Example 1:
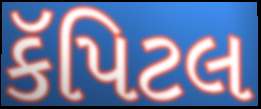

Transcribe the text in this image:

કૅપિટલ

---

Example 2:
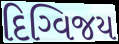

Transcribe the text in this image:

દિગ્વિજય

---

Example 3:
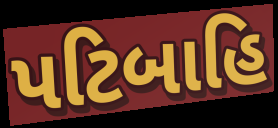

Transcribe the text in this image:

પટિબાહિ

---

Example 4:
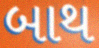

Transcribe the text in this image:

બાથ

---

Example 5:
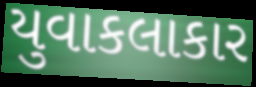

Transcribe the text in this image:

યુવાકલાકાર